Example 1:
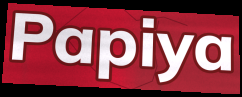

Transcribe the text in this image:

Papiya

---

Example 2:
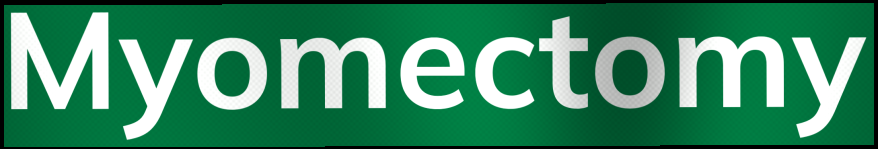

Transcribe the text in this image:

Myomectomy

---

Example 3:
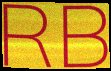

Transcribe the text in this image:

RB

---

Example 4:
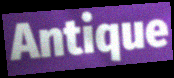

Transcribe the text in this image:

Antique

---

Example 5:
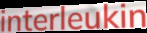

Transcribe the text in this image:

interleukin